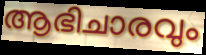
ആഭിചാരവും